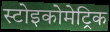
स्टोइकोमेट्रिक